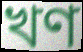
খণ